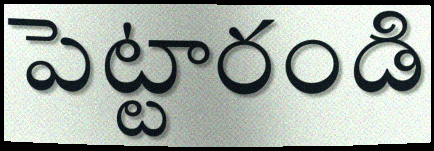
పెట్టారండి